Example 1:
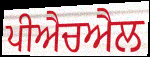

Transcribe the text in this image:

ਪੀਐਚਐਲ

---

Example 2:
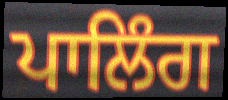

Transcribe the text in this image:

ਪਾਲਿੰਗ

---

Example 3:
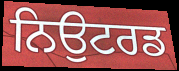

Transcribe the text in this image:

ਨਿਉਟਰਡ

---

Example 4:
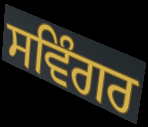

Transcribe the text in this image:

ਸਵਿੰਗਰ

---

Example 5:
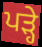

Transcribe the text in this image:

ਪੜ੍ਹੇ